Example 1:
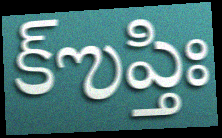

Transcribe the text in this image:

క్ఌప్తిః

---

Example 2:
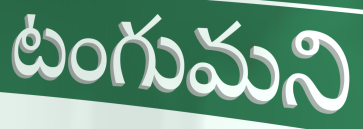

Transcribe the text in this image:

టంగుమని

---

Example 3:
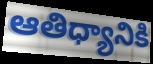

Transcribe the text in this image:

ఆతిధ్యానికి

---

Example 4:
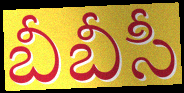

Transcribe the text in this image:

బీబీసీ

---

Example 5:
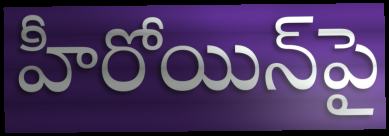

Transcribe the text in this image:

హీరోయిన్‌పై